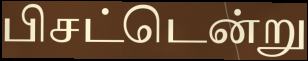
பிசட்டென்று